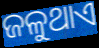
ଜଳୁଥାଏ